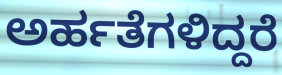
ಅರ್ಹತೆಗಳಿದ್ದರೆ